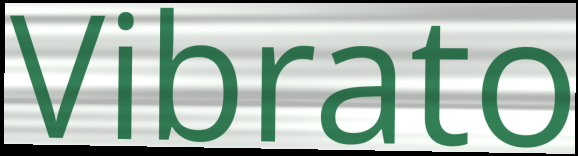
Vibrato